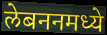
लेबननमध्ये